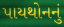
પાયથોનનું